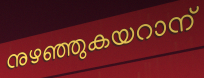
നുഴഞ്ഞുകയറാന്